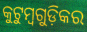
କୁଟୁମ୍ବଗୁଡ଼ିକର